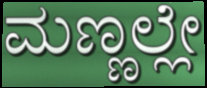
ಮಣ್ಣಲ್ಲೇ